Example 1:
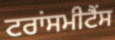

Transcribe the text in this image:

ਟਰਾਂਸਮੀਟੈਂਸ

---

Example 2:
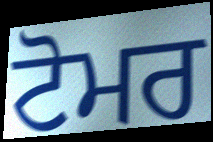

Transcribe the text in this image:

ਟੋਮਰ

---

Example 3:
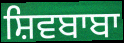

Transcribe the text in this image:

ਸ਼ਿਵਬਾਬਾ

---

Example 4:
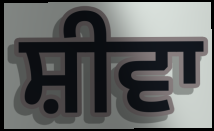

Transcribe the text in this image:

ਸ਼ੀਵਾ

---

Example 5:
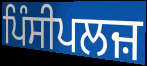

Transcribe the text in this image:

ਪਿੰਸੀਪਲਜ਼